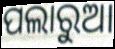
ପଲାରୁଆ